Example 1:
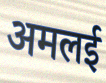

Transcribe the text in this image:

अमलई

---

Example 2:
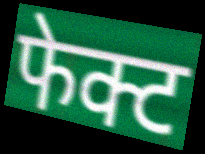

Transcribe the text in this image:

फेक्ट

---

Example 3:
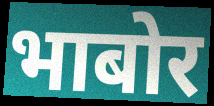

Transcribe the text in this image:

भाबोर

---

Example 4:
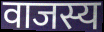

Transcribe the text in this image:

वाजस्य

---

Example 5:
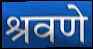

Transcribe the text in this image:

श्रवणे